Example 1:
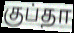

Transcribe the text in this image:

குப்தா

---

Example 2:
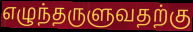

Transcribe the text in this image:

எழுந்தருளுவதற்கு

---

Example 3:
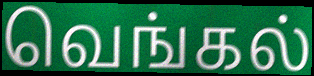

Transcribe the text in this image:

வெங்கல்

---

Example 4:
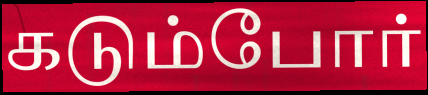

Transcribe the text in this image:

கடும்போர்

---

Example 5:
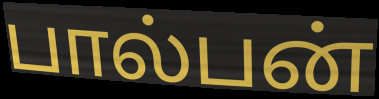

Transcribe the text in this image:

பால்பன்